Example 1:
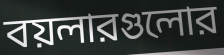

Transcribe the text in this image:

বয়লারগুলোর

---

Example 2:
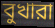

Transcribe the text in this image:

বুখারা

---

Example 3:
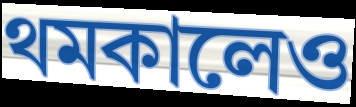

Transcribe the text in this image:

থমকালেও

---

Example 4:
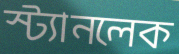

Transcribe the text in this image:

স্ট্যানলেক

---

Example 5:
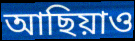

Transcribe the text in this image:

আছিয়াও